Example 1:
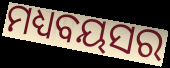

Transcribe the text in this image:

ମଧ୍ୟବୟସର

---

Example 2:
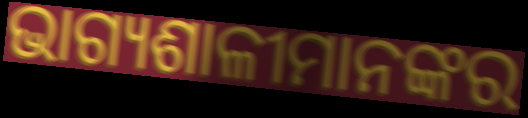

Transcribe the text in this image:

ଭାଗ୍ୟଶାଳୀମାନଙ୍କର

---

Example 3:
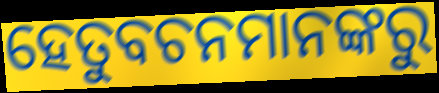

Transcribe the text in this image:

ହେତୁବଚନମାନଙ୍କରୁ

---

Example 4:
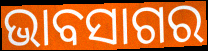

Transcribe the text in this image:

ଭାବସାଗର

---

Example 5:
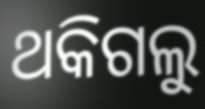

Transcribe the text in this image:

ଥକିଗଲୁ